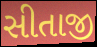
સીતાજી